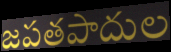
జపతపాదుల